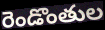
రెండొంతుల